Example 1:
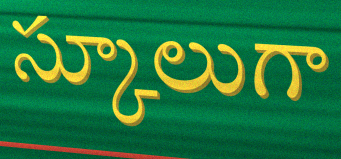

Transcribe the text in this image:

స్కూలుగా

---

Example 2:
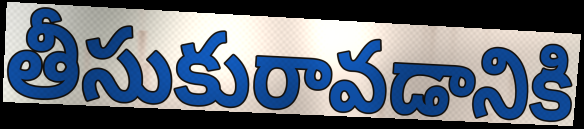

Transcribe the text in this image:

తీసుకురావడానికి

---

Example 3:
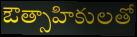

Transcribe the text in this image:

ఔత్సాహికులతో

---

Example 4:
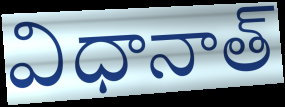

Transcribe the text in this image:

విధానాత్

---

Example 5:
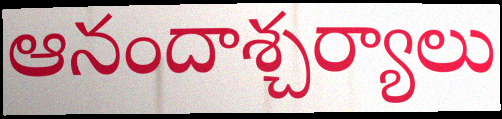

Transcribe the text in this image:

ఆనందాశ్చర్యాలు